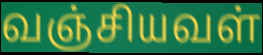
வஞ்சியவள்